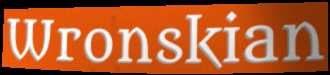
Wronskian